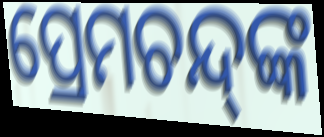
ପ୍ରେମଚନ୍ଦ୍‌ଙ୍କ